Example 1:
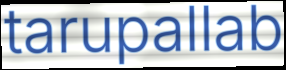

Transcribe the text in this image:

tarupallab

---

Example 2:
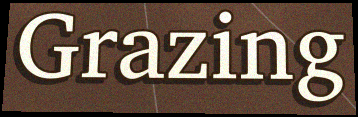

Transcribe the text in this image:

Grazing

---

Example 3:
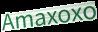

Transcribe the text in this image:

Amaxoxo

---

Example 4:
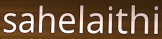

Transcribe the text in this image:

sahelaithi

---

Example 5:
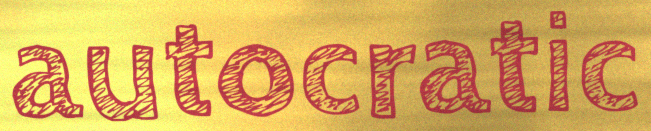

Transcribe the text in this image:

autocratic